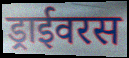
ड्राईवरस